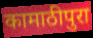
कामाठीपुरा